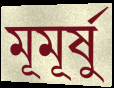
মূমূর্ষু